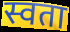
स्वता